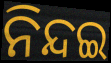
ନିନ୍ଦଇ